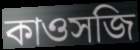
কাওসজি